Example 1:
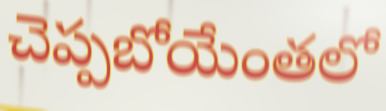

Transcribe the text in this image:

చెప్పబోయేంతలో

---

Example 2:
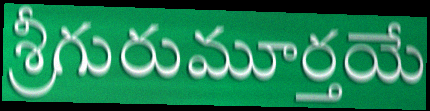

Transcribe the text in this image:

శ్రీగురుమూర్తయే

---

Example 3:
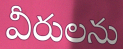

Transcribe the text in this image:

వీరులను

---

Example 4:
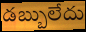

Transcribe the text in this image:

డబ్బులేదు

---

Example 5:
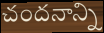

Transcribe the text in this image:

చందనాన్ని